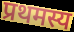
प्रथमस्य